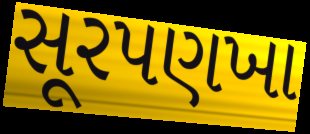
સૂરપણખા